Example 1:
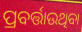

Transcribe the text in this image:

ପ୍ରବର୍ତ୍ତାଉଥିବା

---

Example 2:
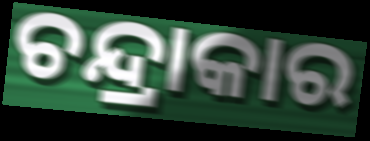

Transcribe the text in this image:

ଚନ୍ଦ୍ରାକାର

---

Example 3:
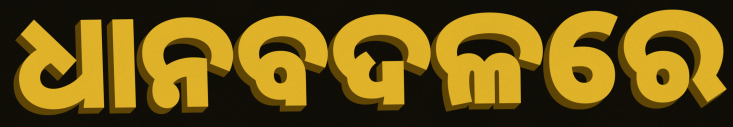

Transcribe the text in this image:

ଧାନବଦଳରେ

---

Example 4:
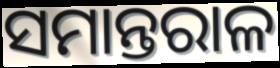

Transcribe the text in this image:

ସମାନ୍ତରାଳ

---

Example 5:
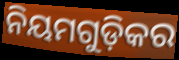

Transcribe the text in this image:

ନିୟମଗୁଡ଼ିକର